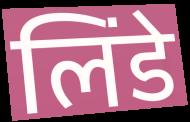
लिंडे